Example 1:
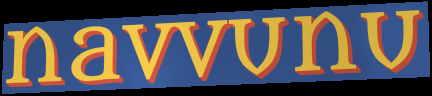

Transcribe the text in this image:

navvunu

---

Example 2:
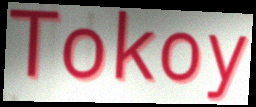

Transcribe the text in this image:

Tokoy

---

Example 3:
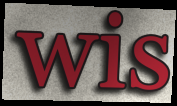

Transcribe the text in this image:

wis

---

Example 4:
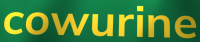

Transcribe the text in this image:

cowurine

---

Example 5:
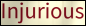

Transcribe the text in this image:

Injurious